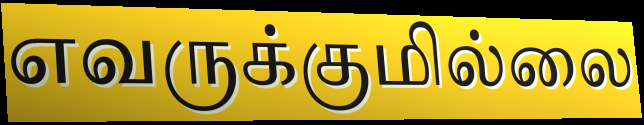
எவருக்குமில்லை